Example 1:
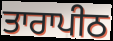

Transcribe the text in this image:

ਤਾਰਾਪੀਠ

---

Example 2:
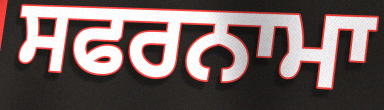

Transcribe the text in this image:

ਸਫਰਨਾਮਾ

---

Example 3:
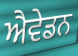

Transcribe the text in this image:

ਐਵੇਡਨ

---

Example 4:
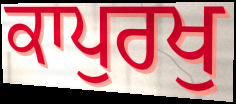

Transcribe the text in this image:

ਕਾਪੁਰਖੁ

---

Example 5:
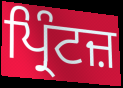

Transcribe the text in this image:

ਪ੍ਰਿੰਟਜ਼